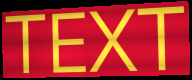
TEXT